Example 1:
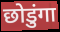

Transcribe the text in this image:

छोडुंगा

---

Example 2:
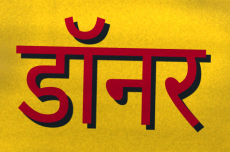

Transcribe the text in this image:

डॉनर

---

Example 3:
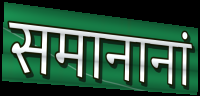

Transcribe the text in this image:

समानानां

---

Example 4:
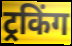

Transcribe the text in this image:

ट्रकिंग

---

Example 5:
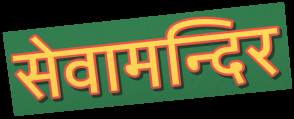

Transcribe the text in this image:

सेवामन्दिर